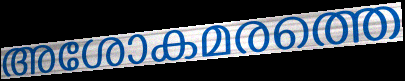
അശോകമരത്തെ